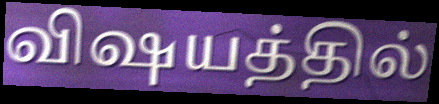
விஷயத்தில்